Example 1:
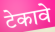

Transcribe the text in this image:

टेकावे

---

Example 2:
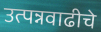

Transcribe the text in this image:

उत्पन्नवाढीचे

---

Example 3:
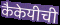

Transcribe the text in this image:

कैकेयीची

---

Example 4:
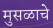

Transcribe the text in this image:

मुसळाचे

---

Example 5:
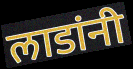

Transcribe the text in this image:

लाडांनी